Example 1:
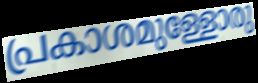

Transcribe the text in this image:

പ്രകാശമുള്ളോരു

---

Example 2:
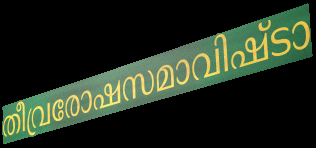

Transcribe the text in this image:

തീവ്രരോഷസമാവിഷ്ടാ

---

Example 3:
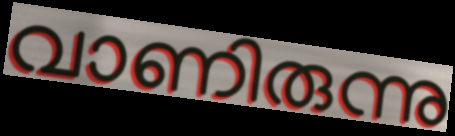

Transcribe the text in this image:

വാണിരുന്നു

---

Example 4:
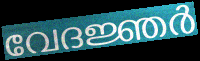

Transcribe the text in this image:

വേദജ്ഞർ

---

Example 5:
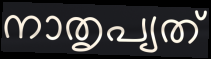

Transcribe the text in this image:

നാതൃപ്യത്